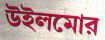
উইলমোর